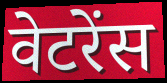
वेटरेंस